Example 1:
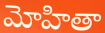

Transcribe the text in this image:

మోహితా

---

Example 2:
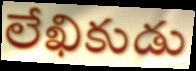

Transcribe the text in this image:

లేఖికుడు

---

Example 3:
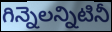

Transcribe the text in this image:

గిన్నెలన్నిటినీ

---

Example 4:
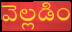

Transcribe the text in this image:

వెల్లడిం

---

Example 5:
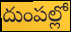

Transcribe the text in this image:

దుంపల్లో